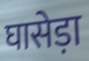
घासेड़ा